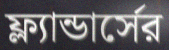
ফ্ল্যান্ডার্সের